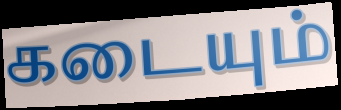
கடையும்